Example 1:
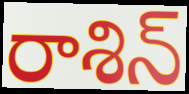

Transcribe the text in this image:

రాశిన్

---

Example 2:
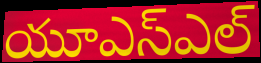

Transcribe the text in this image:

యూఎస్ఎల్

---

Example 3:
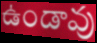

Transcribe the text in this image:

ఉండావు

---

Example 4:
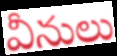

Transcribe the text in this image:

వీనులు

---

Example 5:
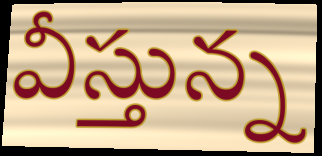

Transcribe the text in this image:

వీస్తున్న